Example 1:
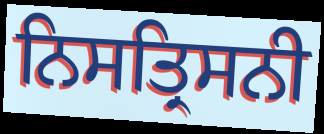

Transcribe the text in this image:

ਨਿਸਤ੍ਰਿਸਨੀ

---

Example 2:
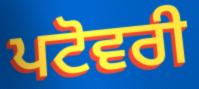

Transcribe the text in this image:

ਪਟੋਵਰੀ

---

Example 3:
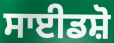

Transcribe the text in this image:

ਸਾਈਡਸ਼ੋ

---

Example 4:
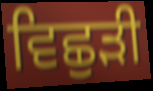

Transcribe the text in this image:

ਵਿਛੁੜੀ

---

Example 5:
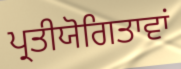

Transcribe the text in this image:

ਪ੍ਰਤੀਯੋਗਿਤਾਵਾਂ